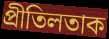
প্ৰীতিলতাক